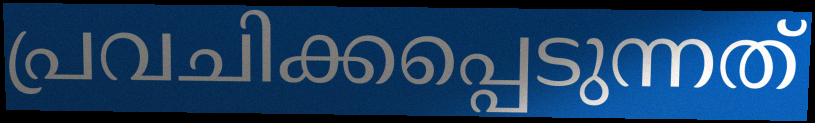
പ്രവചിക്കപ്പെടുന്നത്